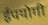
ईपयोगी